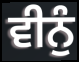
ਵੀਨੁੰ